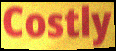
Costly